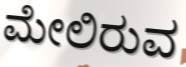
ಮೇಲಿರುವ